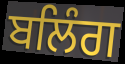
ਬਲਿੰਗ